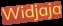
Widjaja